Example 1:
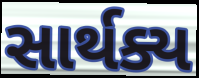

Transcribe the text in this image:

સાર્થક્ય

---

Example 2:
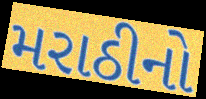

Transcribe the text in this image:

મરાઠીનો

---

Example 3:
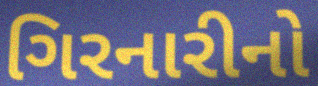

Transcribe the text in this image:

ગિરનારીનો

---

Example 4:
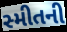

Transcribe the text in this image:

સ્મીતની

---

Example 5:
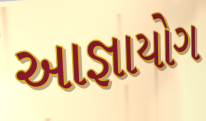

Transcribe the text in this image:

આજ્ઞાયોગ